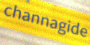
channagide